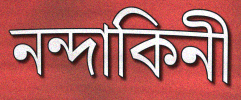
নন্দাকিনী